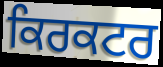
ਕਿਰਕਟਰ